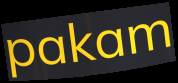
pakam